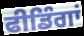
ਫੀਡਿੰਗਾਂ